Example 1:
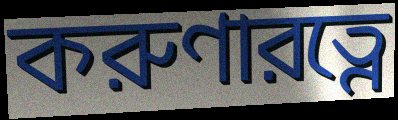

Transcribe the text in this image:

করুণারত্নে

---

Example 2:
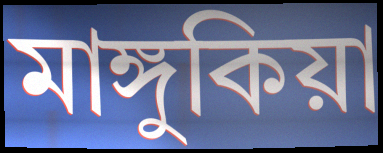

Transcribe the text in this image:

মাঙ্গুকিয়া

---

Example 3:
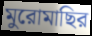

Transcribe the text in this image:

মুরোমাছির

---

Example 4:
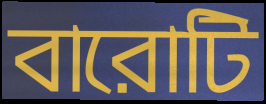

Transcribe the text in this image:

বারোটি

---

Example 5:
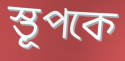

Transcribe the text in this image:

স্তূপকে